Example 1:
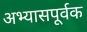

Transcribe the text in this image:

अभ्यासपूर्वक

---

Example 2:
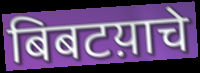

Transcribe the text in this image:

बिबटय़ाचे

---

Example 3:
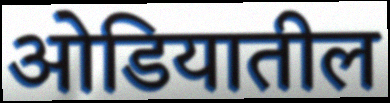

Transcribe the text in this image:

ओडियातील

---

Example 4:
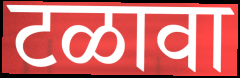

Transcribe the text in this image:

टळावा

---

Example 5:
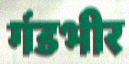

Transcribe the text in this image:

गंडभीर